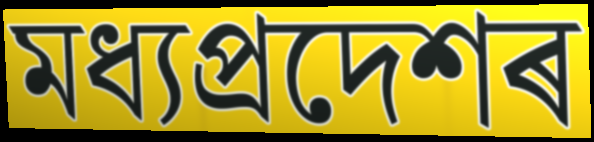
মধ্যপ্ৰদেশৰ